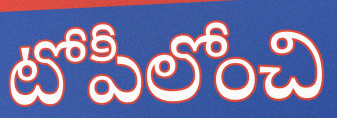
టోపీలోంచి